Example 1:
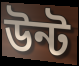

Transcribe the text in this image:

উন্ট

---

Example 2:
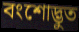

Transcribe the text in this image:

বংশোদ্ভুত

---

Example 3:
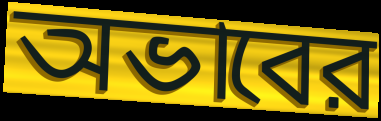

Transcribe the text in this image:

অভাবের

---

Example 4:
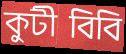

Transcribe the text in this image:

কুটীবিবি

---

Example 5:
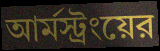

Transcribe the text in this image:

আর্মস্ট্রংয়ের